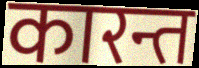
कारन्त